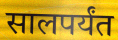
सालपर्यंत